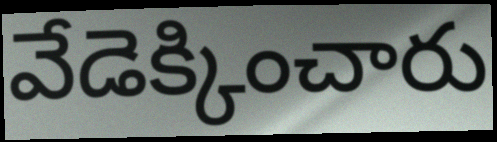
వేడెక్కించారు